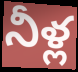
నీళ్ల